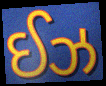
ઈઝ